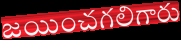
జయించగలిగారు